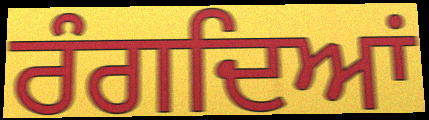
ਰੰਗਦਿਆਂ